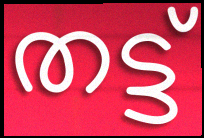
തട്ട്